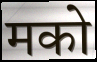
मको